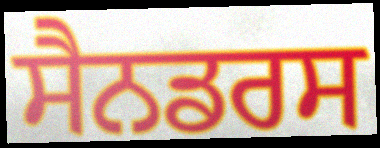
ਸੈਨਡਰਸ